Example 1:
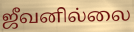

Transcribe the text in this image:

ஜீவனில்லை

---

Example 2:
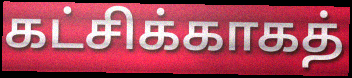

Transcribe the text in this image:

கட்சிக்காகத்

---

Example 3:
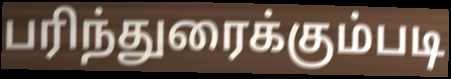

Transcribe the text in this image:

பரிந்துரைக்கும்படி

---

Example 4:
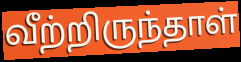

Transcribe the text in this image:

வீற்றிருந்தாள்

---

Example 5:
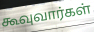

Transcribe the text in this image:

கூவுவார்கள்